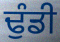
ਢੁੰਡੀ